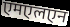
एमएलएन